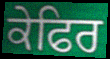
ਕੇਫਿਰ